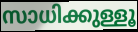
സാധിക്കുള്ളൂ